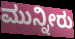
ಮುನ್ನೀರು